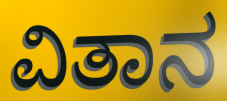
ವಿತಾನ